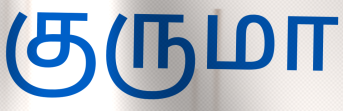
குருமா